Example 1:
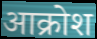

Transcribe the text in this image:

आक्रोश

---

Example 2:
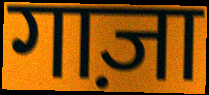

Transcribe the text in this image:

गाज़ा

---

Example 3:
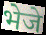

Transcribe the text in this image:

भेजे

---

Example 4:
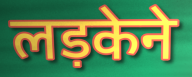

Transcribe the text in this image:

लड़केने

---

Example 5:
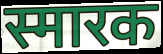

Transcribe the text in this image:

स्मारक